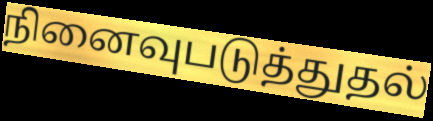
நினைவுபடுத்துதல்